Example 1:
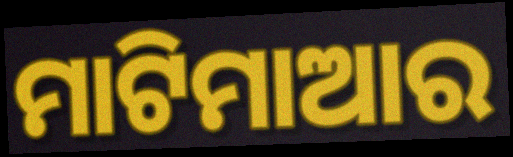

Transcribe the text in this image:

ମାଟିମାଆର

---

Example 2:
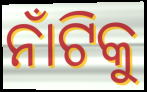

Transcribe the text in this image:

ନାଁଟିକୁ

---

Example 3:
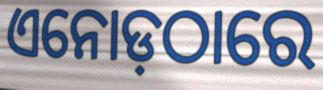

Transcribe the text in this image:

ଏନୋଡ଼ଠାରେ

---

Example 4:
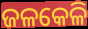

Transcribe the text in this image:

ଜଳକେଳି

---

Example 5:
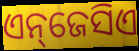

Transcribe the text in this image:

ଏନ୍‌ଜେସିଏ